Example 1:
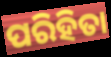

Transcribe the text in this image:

ପରିହିତା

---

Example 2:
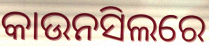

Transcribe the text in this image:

କାଉନସିଲରେ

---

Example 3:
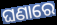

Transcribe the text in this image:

ଘଣାରେ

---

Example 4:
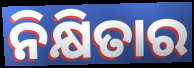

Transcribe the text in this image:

ନିକ୍ଷିତାର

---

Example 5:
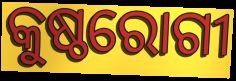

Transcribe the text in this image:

କୁଷ୍ଠରୋଗୀ